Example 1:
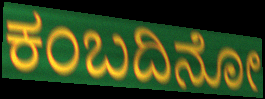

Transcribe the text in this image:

ಕಂಬದಿನೋ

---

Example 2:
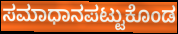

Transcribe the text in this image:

ಸಮಾಧಾನಪಟ್ಟುಕೊಂಡ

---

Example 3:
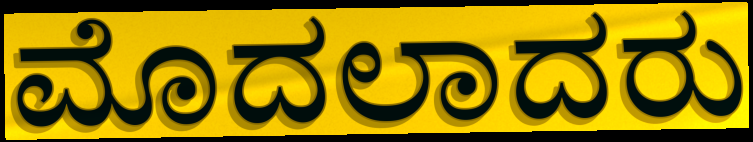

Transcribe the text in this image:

ಮೊದಲಾದರು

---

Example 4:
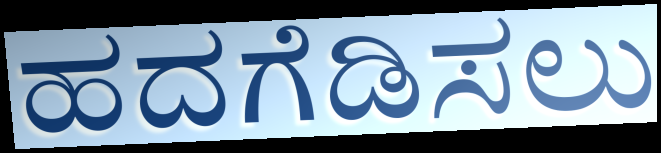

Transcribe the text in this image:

ಹದಗೆಡಿಸಲು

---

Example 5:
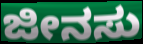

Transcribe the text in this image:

ಜೀನಸು